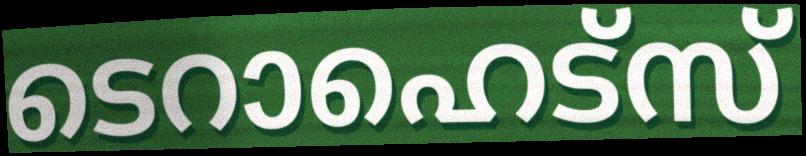
ടെറാഹെട്സ്